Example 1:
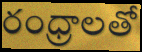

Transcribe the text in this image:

రంధ్రాలతో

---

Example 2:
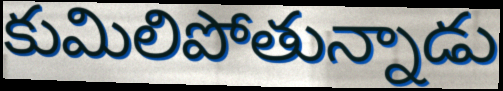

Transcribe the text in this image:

కుమిలిపోతున్నాడు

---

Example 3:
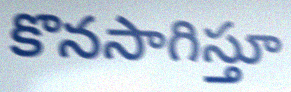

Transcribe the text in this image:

కొనసాగిస్తూ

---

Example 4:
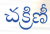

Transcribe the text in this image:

చక్రిణీ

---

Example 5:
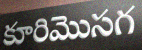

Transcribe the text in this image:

కూరిమొసగ